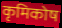
कृमिकोष